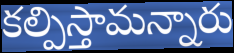
కల్పిస్తామన్నారు